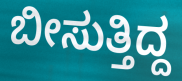
ಬೀಸುತ್ತಿದ್ದ